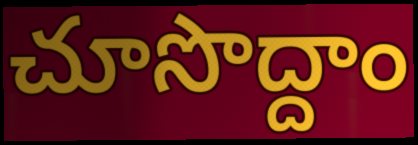
చూసొద్దాం